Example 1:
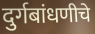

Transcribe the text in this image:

दुर्गबांधणीचे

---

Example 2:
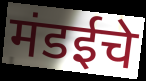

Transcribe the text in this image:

मंडईचे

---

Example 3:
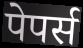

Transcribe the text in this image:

पेपर्स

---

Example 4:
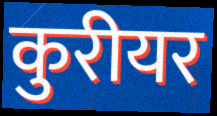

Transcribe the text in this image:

कुरीयर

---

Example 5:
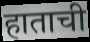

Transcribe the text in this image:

हाताची